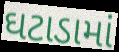
ઘટાડામાં